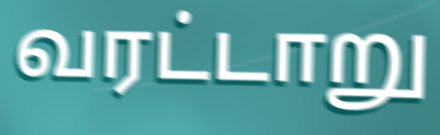
வரட்டாறு